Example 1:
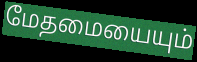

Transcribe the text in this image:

மேதமையையும்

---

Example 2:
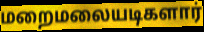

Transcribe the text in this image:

மறைமலையடிகளார்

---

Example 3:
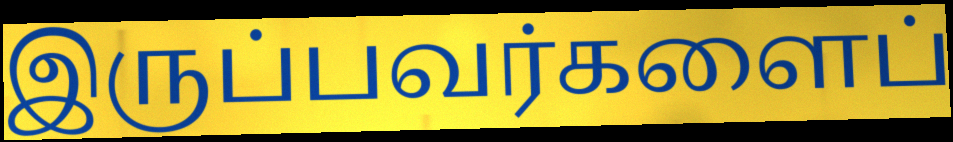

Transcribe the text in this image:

இருப்பவர்களைப்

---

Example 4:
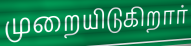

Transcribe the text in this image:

முறையிடுகிறார்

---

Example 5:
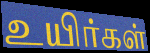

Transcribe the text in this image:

உயிர்கள்